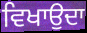
ਵਿਖਾਉਦਾ